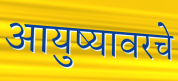
आयुष्यावरचे